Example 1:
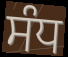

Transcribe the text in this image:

ਸੰਧ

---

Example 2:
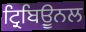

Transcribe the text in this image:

ਟ੍ਰਿਬਿਊੁਨਲ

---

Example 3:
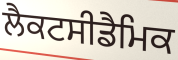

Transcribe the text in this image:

ਲੈਕਟਸੀਡੈਮਿਕ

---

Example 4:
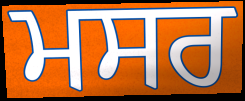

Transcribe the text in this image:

ਮਸਰ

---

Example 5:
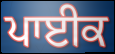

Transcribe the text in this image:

ਪਾਈਕ